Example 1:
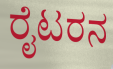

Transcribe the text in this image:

ರೈಟರನ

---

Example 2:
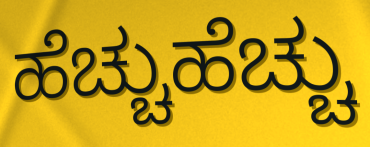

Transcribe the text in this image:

ಹೆಚ್ಚುಹೆಚ್ಚು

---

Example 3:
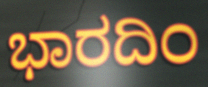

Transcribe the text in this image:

ಭಾರದಿಂ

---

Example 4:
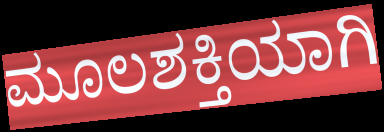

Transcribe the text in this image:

ಮೂಲಶಕ್ತಿಯಾಗಿ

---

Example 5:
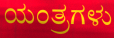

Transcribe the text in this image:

ಯಂತ್ರಗಳು